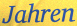
Jahren